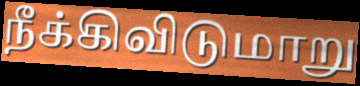
நீக்கிவிடுமாறு